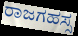
ರಾಜಗಹಸ್ಸ